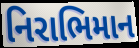
નિરાભિમાન